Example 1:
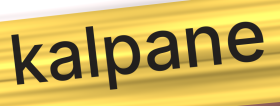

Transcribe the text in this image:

kalpane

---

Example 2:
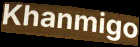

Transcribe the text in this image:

Khanmigo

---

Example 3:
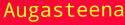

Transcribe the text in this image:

Augasteena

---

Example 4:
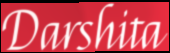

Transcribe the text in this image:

Darshita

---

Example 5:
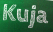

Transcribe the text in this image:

Kuja